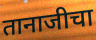
तानाजीचा